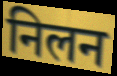
निलन